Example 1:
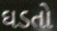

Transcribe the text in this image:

ઘડતો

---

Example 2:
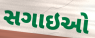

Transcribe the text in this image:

સગાઇઓ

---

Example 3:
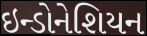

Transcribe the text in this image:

ઇન્ડોનેશિયન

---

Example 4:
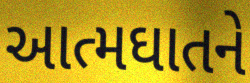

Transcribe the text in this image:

આત્મઘાતને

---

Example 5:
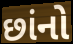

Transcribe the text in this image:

છાંનો